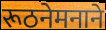
रूठनेमनाने